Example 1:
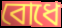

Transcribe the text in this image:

বোধে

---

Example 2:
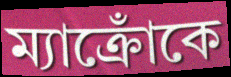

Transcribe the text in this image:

ম্যাক্রোঁকে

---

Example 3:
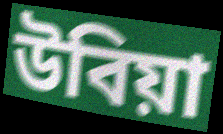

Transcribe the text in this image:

উবিয়া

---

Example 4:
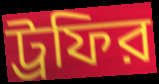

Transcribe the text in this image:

ট্রফির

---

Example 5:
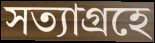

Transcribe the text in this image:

সত্যাগ্রহে